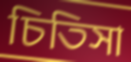
চিতিসা